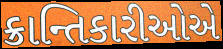
ક્રાન્તિકારીઓએ